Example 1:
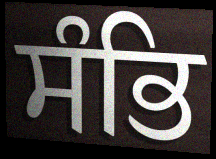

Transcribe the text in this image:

ਸੰਭਿ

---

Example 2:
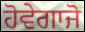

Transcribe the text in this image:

ਹੋਵੇਗਾਜੋ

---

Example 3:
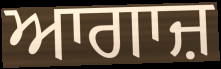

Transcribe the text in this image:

ਆਗਾਜ਼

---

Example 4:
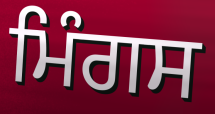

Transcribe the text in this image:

ਮਿੰਗਸ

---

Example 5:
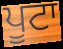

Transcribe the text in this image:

ਪੂਟਾ